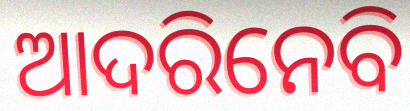
ଆଦରିନେବି